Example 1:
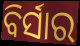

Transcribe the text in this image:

ବିର୍ସାର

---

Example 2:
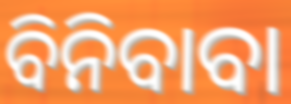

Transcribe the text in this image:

ବିନିବାବା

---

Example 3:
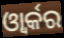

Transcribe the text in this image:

ଓ୍ବାର୍କର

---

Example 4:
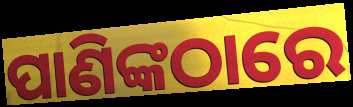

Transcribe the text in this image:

ପାଣିଙ୍କଠାରେ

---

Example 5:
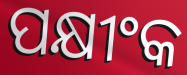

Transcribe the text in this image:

ପକ୍ଷୀଂକ